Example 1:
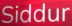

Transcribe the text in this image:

Siddur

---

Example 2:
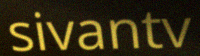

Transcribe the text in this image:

sivantv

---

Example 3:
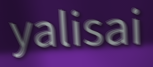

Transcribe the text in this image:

yalisai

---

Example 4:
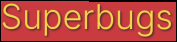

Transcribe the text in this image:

Superbugs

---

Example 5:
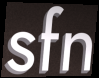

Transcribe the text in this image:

sfn